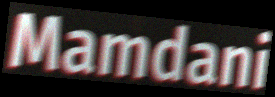
Mamdani